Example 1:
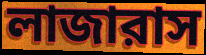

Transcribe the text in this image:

লাজারাস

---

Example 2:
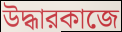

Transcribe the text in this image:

উদ্ধারকাজে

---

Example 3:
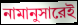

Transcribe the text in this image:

নামানুসারেই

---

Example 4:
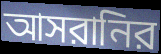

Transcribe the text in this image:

আসরানির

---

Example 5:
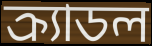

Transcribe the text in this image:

ক্র্যাডল